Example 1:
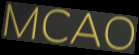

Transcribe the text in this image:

MCAO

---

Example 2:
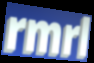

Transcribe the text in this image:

rmrl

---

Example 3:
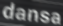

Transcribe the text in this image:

dansa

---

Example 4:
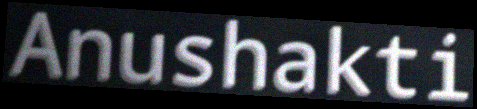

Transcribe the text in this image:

Anushakti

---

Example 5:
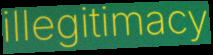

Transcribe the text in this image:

illegitimacy